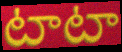
టాటా